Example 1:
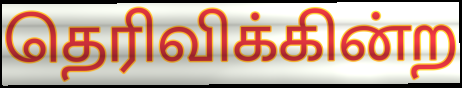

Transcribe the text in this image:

தெரிவிக்கின்ற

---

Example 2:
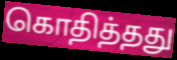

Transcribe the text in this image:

கொதித்தது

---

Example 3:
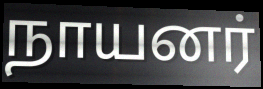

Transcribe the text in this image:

நாயனர்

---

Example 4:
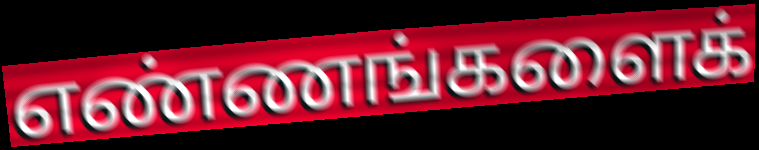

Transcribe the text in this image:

எண்ணங்களைக்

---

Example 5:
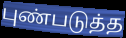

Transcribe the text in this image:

புண்படுத்த